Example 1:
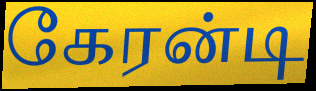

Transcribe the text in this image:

கேரன்டி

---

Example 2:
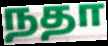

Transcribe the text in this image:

நதா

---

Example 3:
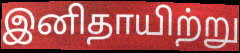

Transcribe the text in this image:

இனிதாயிற்று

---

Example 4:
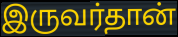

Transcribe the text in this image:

இருவர்தான்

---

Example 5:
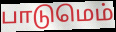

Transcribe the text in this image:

பாடுமெம்